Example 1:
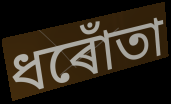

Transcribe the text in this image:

ধৰোঁতা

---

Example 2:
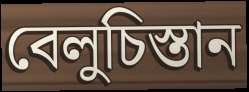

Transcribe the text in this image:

বেলুচিস্তান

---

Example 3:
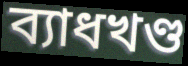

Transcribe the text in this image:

ব্যাধখণ্ড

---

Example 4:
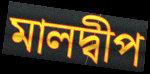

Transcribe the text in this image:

মালদ্বীপ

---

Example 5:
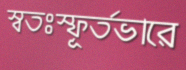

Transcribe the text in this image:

স্বতঃস্ফূৰ্তভাৱে